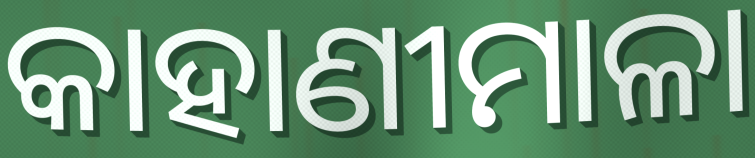
କାହାଣୀମାଳା